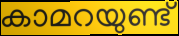
കാമറയുണ്ട്